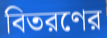
বিতরণের